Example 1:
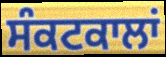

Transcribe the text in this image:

ਸੰਕਟਕਾਲਾਂ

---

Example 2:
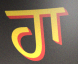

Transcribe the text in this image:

ਹਾ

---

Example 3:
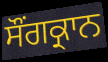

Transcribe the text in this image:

ਸੌਂਗਕ੍ਰਾਨ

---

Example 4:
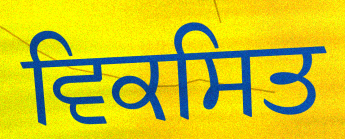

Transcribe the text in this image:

ਵਿਕਸਿਤ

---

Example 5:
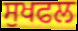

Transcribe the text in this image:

ਸੁਖਫਲ